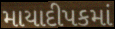
માયાદીપકમાં